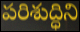
పరిశుద్ధిని